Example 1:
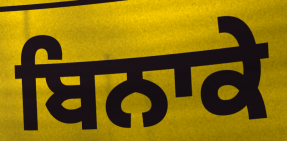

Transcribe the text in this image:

ਬਿਨਾਕੇ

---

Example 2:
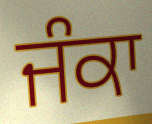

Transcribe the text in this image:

ਜੰਕਾ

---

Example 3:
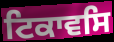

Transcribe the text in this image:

ਟਿਕਾਵਸਿ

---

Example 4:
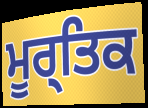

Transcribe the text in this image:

ਮੂਰ੍ਤਿਕ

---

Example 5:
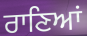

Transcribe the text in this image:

ਰਾਣਿਆਂ